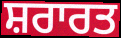
ਸ਼ਰਾਰਤ